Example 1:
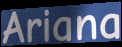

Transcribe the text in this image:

Ariana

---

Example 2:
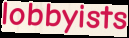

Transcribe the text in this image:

lobbyists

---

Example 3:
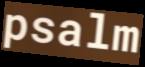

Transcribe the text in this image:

psalm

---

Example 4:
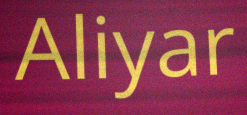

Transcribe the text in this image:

Aliyar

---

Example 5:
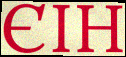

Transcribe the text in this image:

EIH